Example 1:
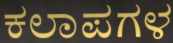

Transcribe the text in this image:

ಕಲಾಪಗಳ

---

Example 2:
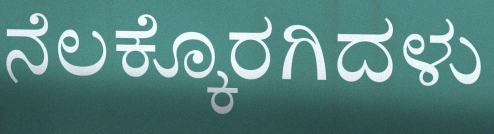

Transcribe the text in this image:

ನೆಲಕ್ಕೊರಗಿದಳು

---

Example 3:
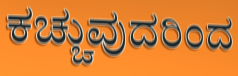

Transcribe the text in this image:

ಕಚ್ಚುವುದರಿಂದ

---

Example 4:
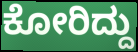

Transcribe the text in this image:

ಕೋರಿದ್ದು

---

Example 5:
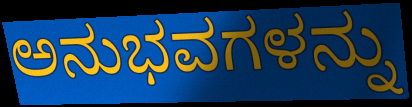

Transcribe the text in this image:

ಅನುಭವಗಳನ್ನು